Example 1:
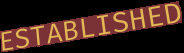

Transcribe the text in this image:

ESTABLISHED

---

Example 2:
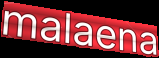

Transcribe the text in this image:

malaena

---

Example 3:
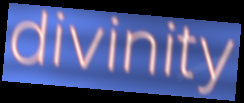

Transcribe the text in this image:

divinity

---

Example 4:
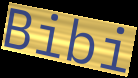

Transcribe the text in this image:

Bibi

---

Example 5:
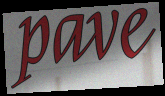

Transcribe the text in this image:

pave